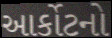
આર્કોટનો